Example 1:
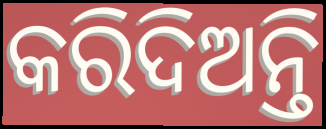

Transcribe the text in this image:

କରିଦିଅନ୍ତି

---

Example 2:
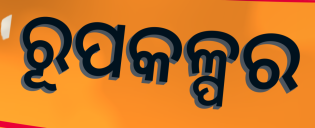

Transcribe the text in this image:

ରୂପକଳ୍ପର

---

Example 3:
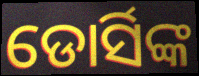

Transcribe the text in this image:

ଡୋର୍ସିଙ୍କ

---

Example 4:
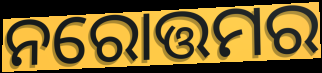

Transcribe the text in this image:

ନରୋତ୍ତମର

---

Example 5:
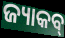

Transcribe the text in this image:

ଜ୍ୟାକବ୍